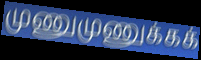
முணுமுணுக்கக்